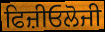
ਫਿਜ਼ੀਓਲੋਜੀ